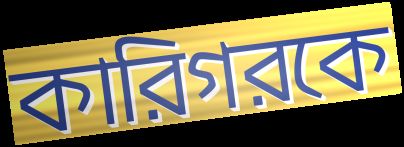
কারিগরকে